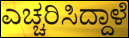
ಎಚ್ಚರಿಸಿದ್ದಾಳೆ